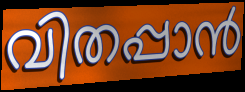
വിതപ്പാൻ